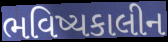
ભવિષ્યકાલીન